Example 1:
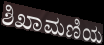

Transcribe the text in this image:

ಶಿಖಾಮಣಿಯ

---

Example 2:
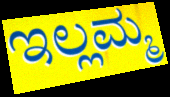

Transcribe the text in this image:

ಇಲ್ಲಮ್ಮ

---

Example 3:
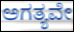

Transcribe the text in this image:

ಅಗತ್ಯವೇ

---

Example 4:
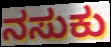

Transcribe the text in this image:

ನಸುಕು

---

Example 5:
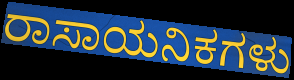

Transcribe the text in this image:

ರಾಸಾಯನಿಕಗಳು